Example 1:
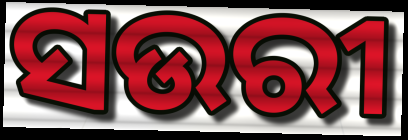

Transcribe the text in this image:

ସଉରୀ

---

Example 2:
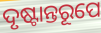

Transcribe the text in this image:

ଦୃଷ୍ଟାନ୍ତରୂପେ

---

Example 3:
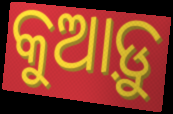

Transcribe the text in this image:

କୁଆଡ଼ୁ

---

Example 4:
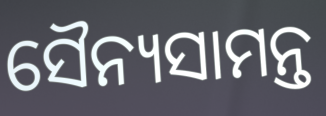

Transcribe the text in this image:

ସୈନ୍ୟସାମନ୍ତ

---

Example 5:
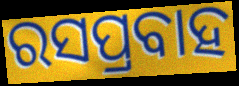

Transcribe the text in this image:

ରସପ୍ରବାହ